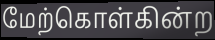
மேற்கொள்கின்ற